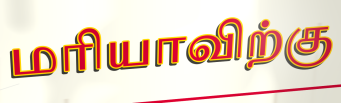
மரியாவிற்கு